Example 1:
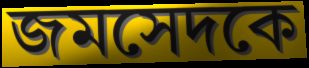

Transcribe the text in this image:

জমসেদকে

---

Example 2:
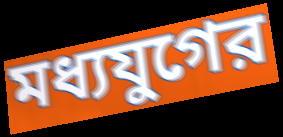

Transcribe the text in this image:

মধ্যযুগের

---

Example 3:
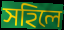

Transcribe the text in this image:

সহিলে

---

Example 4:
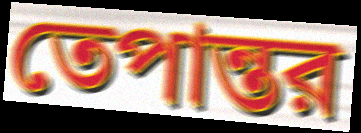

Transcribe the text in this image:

তেপান্তর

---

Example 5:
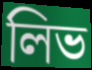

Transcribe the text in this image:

লিভ